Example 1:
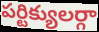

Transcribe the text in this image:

పర్టిక్యులర్గా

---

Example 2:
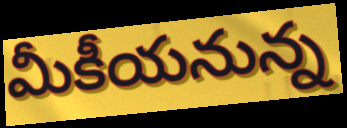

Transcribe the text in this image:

మీకీయనున్న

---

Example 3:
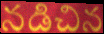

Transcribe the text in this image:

నడిచిన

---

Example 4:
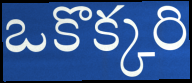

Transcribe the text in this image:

ఒకొక్కరి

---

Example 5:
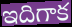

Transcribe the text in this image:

ఇదిగాక